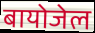
बायोजेल